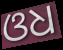
ଓଧ